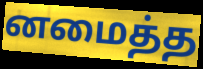
னமைத்த